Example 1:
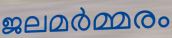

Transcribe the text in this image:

ജലമർമ്മരം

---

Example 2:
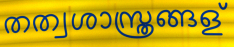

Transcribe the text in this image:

തത്വശാസ്ത്രങ്ങള്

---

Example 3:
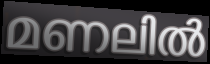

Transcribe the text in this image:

മണലിൽ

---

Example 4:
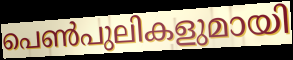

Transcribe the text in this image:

പെൺപുലികളുമായി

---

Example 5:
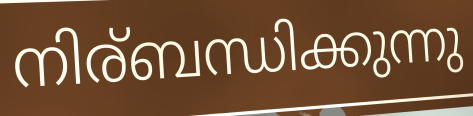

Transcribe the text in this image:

നിര്ബന്ധിക്കുന്നു